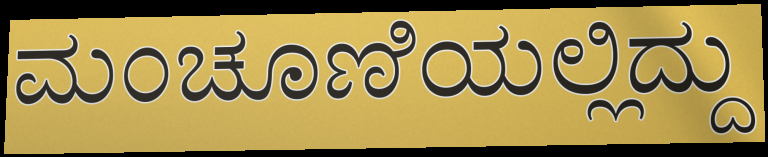
ಮಂಚೂಣಿಯಲ್ಲಿದ್ದು